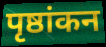
पृष्ठांकन